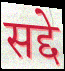
सद्दे